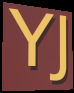
YJ